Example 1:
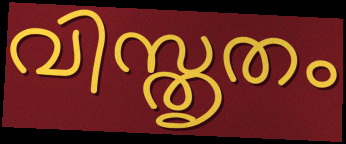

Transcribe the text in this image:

വിസ്തൃതം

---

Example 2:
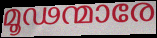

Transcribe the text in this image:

മൂഢന്മാരേ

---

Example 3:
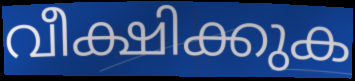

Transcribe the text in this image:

വീക്ഷിക്കുക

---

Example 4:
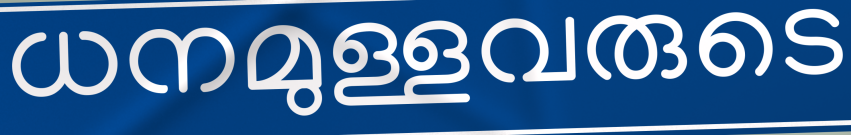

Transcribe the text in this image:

ധനമുള്ളവരുടെ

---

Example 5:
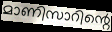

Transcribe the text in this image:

മാണിസാറിന്റെ